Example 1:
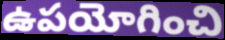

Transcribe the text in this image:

ఉపయోగించి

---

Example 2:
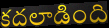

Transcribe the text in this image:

కదలాడింది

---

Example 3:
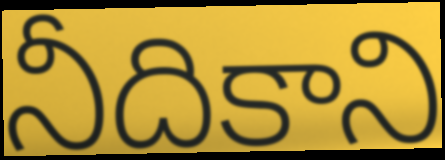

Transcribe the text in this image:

నీదికాని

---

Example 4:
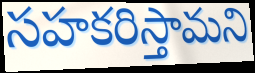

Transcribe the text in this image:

సహకరిస్తామని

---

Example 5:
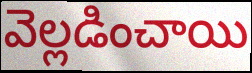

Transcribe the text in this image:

వెల్లడించాయి